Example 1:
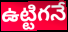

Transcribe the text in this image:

ఉట్టిగనే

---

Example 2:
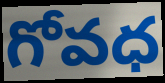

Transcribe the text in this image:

గోవధ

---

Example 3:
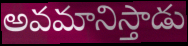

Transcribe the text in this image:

అవమానిస్తాడు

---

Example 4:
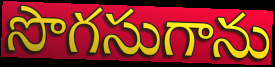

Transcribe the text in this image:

సొగసుగాను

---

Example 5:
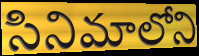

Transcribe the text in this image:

సినిమాలోని